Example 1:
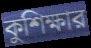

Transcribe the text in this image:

কুশিক্ষার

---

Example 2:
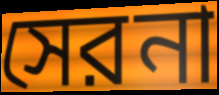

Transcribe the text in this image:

সেরনা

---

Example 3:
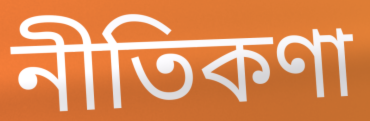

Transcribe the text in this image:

নীতিকণা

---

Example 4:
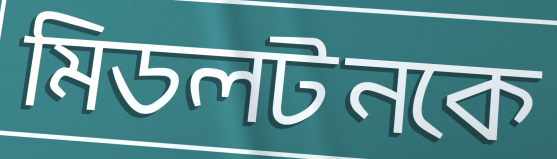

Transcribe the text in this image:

মিডলটনকে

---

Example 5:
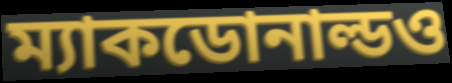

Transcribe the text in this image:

ম্যাকডোনাল্ডও